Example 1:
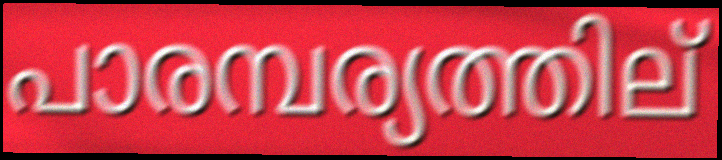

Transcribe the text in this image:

പാരമ്പര്യത്തില്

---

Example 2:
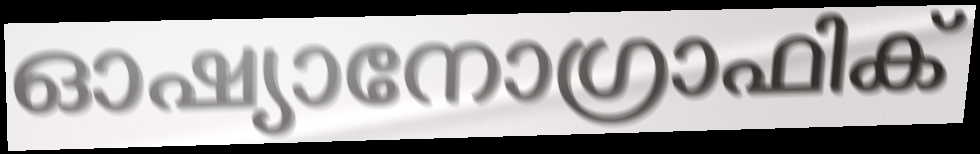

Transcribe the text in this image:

ഓഷ്യാനോഗ്രാഫിക്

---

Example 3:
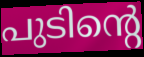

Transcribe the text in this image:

പുടിന്റെ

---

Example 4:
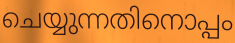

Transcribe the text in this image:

ചെയ്യുന്നതിനൊപ്പം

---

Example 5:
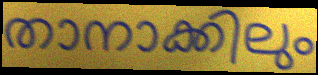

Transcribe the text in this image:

താനാക്കിലും